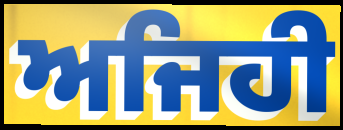
ਅਜਿਹੀ